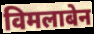
विमलाबेन